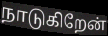
நாடுகிறேன்